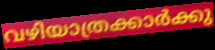
വഴിയാത്രക്കാർക്കു